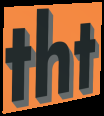
tht